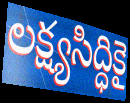
లక్ష్యసిద్ధికై